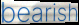
bearish